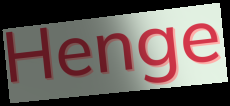
Henge